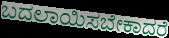
ಬದಲಾಯಿಸಬೇಕಾದರೆ